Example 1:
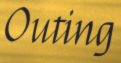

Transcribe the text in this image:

Outing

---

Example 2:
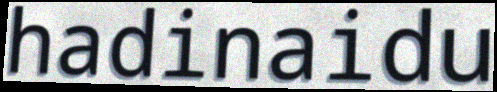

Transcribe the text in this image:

hadinaidu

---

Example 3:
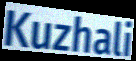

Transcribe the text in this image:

Kuzhali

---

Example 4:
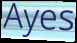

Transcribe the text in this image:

Ayes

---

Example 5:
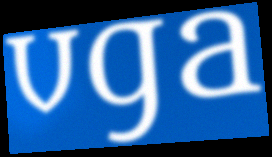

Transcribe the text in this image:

uga